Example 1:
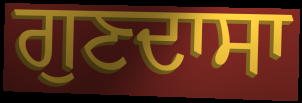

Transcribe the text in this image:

ਗੁਣਦਾਸਾ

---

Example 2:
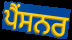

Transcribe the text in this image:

ਪੈਂਸਨਰ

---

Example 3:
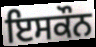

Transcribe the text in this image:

ਇਸਕੌਨ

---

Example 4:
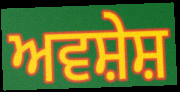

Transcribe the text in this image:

ਅਵਸ਼ੇਸ਼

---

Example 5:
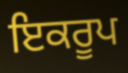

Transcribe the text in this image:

ਇਕਰੂਪ